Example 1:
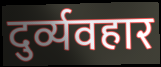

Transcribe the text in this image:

दुर्व्यवहार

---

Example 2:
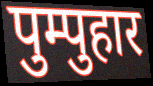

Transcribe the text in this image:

पुम्पुहार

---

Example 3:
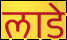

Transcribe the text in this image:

लाडे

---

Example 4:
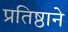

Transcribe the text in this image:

प्रतिष्ठाने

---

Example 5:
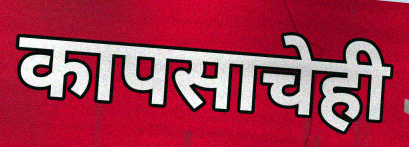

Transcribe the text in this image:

कापसाचेही